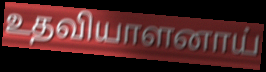
உதவியாளனாய்